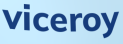
viceroy